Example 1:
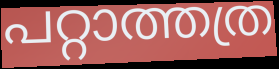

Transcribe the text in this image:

പറ്റാത്തത്ര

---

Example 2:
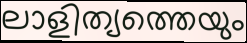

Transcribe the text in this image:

ലാളിത്യത്തെയും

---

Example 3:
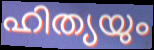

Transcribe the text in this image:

ഹിത്യയും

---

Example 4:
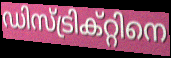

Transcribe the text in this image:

ഡിസ്ട്രിക്റ്റിനെ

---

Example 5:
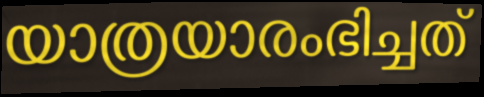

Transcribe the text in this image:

യാത്രയാരംഭിച്ചത്